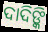
ଦାଦିଙ୍କି